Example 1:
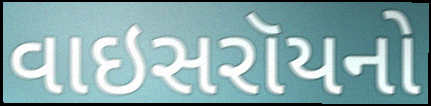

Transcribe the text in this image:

વાઇસરૉયનો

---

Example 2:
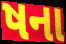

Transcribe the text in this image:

ષના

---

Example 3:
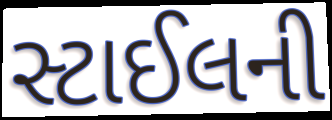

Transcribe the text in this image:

સ્ટાઈલની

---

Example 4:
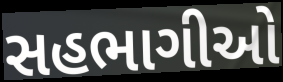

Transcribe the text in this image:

સહભાગીઓ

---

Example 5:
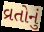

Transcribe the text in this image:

વ્રતોનું